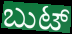
ಬುಟ್